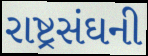
રાષ્ટ્રસંઘની